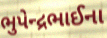
ભુપેન્દ્રભાઈના